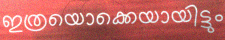
ഇത്രയൊക്കെയായിട്ടും